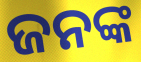
ଜନଙ୍କ